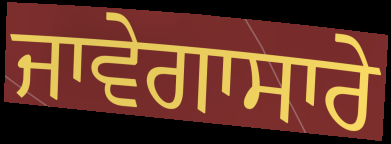
ਜਾਵੇਗਾਸਾਰੇ